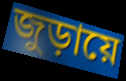
জুড়ায়ে